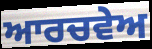
ਆਰਚਵੇਅ